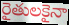
రైతులకైనా